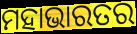
ମହାଭାରତର